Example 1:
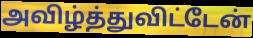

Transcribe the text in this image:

அவிழ்த்துவிட்டேன்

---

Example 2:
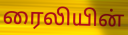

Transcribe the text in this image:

ரைலியின்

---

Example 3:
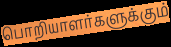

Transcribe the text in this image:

பொறியாளர்களுக்கும்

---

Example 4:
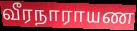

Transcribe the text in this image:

வீரநாராயண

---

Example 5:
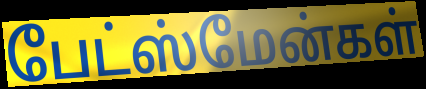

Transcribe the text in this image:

பேட்ஸ்மேன்கள்